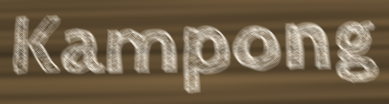
Kampong